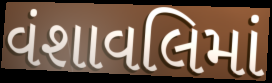
વંશાવલિમાં